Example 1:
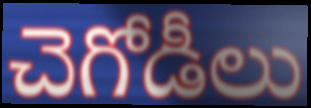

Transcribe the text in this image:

చెగోడీలు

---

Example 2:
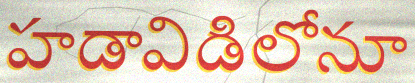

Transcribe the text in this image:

హడావిడిలోనూ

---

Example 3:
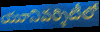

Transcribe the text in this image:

యూనివర్శిటీలో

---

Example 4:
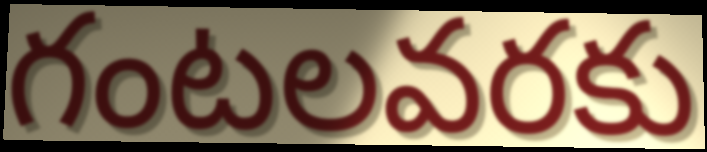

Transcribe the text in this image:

గంటలవరకు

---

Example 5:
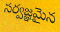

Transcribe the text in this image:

సర్వజ్ఞమైన